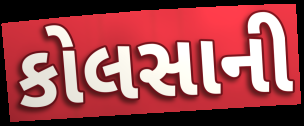
કોલસાની